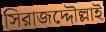
সিরাজদ্দৌল্লাই